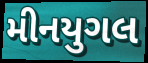
મીનયુગલ